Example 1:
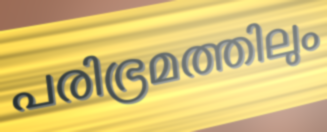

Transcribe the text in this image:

പരിഭ്രമത്തിലും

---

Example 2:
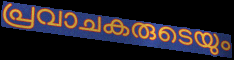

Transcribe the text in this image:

പ്രവാചകരുടെയും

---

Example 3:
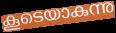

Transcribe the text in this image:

കൂടെയാകുന്നു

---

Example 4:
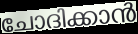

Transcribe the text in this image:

ചോദിക്കാൻ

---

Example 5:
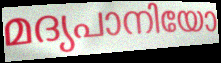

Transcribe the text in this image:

മദ്യപാനിയോ